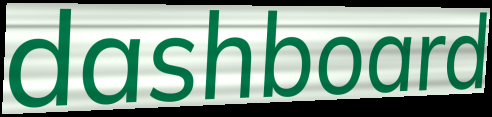
dashboard